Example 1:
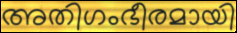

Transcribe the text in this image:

അതിഗംഭീരമായി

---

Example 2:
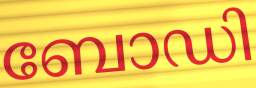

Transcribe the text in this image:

ബോഡി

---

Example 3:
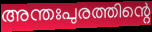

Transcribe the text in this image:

അന്തഃപുരത്തിന്റെ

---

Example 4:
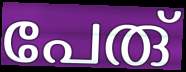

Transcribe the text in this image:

പേരു്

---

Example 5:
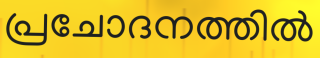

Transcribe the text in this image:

പ്രചോദനത്തിൽ